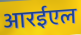
आरईएल